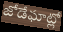
జోడేఘాట్లో